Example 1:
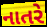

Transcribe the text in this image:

નાતરે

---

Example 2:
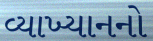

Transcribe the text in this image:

વ્યાખ્યાનનો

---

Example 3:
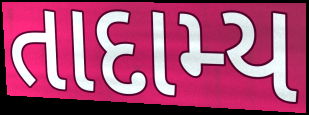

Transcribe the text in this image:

તાદામ્ય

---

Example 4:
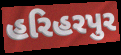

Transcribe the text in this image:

હરિહરપુર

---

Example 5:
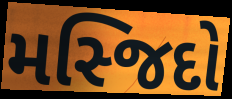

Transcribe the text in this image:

મસ્જિદો